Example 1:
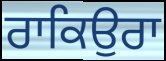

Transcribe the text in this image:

ਰਾਕਿਉਰਾ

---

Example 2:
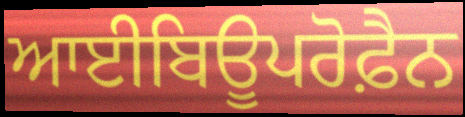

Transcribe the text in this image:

ਆਈਬਿਊਪਰੋਫ਼ੈਨ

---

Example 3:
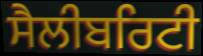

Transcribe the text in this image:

ਸੈਲੀਬਰਿਟੀ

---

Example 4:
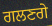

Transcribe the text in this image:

ਗਲਣਗੇ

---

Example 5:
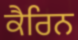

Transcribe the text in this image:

ਕੈਰਿਨ